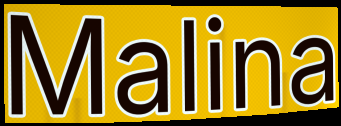
Malina